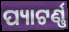
ପ୍ୟାଟର୍ଣ୍ଣ